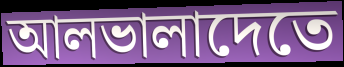
আলভালাদেতে